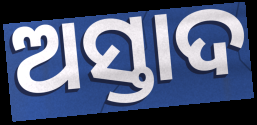
ଅସ୍ତାଦ